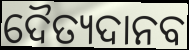
ଦୈତ୍ୟଦାନବ